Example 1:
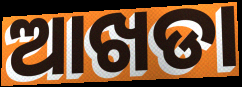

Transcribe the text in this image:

ଆଖଡା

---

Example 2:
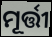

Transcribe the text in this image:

ମୂର୍ତ୍ତୀ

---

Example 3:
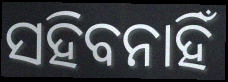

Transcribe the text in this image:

ସହିବନାହିଁ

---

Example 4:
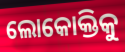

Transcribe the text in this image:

ଲୋକୋକ୍ତିକୁ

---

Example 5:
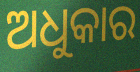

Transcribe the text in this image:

ଅଧୁକାର